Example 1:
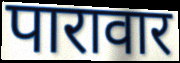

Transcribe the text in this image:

पारावार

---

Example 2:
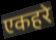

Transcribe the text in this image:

एकहरे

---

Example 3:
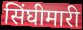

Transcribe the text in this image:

सिंघीमारी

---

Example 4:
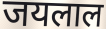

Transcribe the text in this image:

जयलाल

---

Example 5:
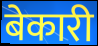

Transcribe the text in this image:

बेकारी